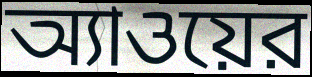
অ্যাওয়ের